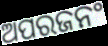
ଅପରଜନଂ